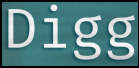
Digg